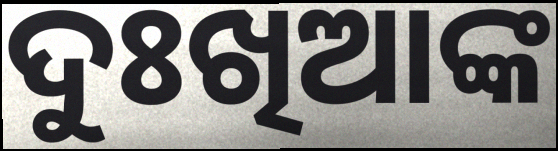
ଦୁଃଖିଆଙ୍କ